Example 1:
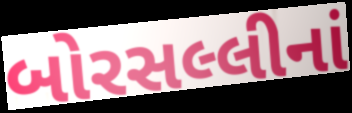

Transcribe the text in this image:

બોરસલ્લીનાં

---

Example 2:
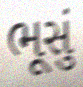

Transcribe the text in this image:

ભૂસું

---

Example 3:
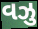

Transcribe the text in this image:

વઝુ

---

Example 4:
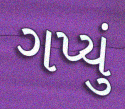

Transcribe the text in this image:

ગપ્યું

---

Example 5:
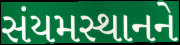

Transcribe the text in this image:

સંયમસ્થાનને